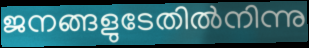
ജനങ്ങളുടേതിൽനിന്നു